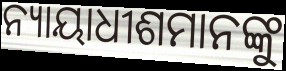
ନ୍ୟାୟାଧୀଶମାନଙ୍କୁ